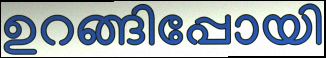
ഉറങ്ങിപ്പോയി